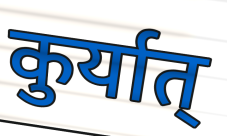
कुर्यात्